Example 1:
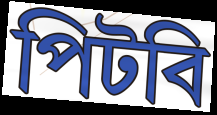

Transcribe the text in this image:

পিটবি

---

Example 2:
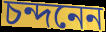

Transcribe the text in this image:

চন্দনেন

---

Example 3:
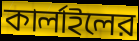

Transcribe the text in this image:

কার্লাইলের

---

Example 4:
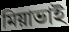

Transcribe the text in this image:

মিয়াভাই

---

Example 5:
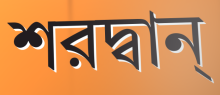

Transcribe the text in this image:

শরদ্বান্